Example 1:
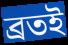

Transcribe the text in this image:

ব্রতই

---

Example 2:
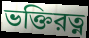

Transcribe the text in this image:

ভক্তিরত্ন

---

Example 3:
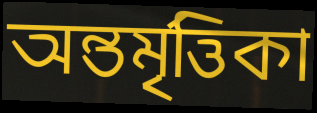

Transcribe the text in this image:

অন্তর্মৃত্তিকা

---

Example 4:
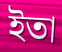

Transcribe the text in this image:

ইতা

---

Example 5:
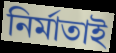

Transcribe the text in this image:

নির্মাতাই